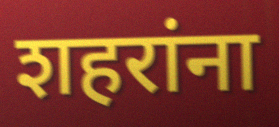
शहरांना